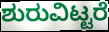
ಶುರುವಿಟ್ಟರೆ